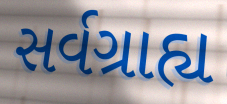
સર્વગ્રાહ્ય